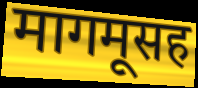
मागमूसह